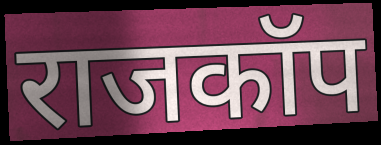
राजकॉप